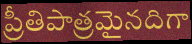
ప్రీతిపాత్రమైనదిగా